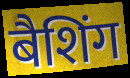
बैशिंग